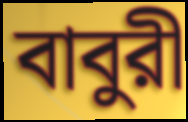
বাবুরী